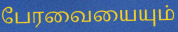
பேரவையையும்